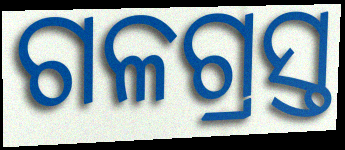
ଗଳଗ୍ରସ୍ତ